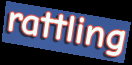
rattling